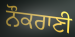
ਨੌਕਰਾਣੀ